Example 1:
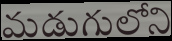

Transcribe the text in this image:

మడుగులోని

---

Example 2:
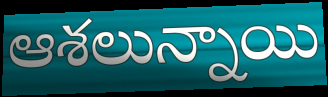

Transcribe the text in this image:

ఆశలున్నాయి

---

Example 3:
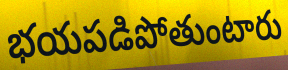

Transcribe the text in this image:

భయపడిపోతుంటారు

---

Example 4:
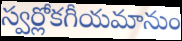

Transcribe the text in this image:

స్వర్లోకగీయమానుం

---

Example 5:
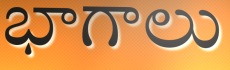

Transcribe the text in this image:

భాగాలు